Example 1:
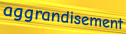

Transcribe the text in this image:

aggrandisement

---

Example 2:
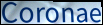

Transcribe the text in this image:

Coronae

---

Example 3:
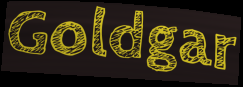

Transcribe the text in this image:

Goldgar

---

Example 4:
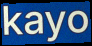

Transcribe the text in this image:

kayo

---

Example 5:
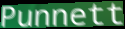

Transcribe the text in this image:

Punnett